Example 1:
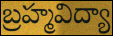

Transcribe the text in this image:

బ్రహ్మవిద్యా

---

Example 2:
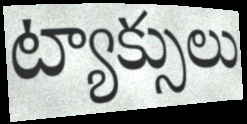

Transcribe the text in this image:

ట్యాక్సులు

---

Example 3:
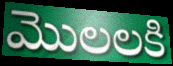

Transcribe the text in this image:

మొలలకి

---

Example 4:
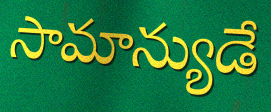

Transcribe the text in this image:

సామాన్యుడే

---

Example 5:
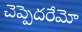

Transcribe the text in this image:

చెప్పెదరేమో